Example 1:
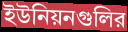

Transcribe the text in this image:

ইউনিয়নগুলির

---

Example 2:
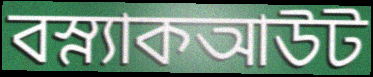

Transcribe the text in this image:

বস্ন্যাকআউট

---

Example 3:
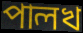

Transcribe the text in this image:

পালখ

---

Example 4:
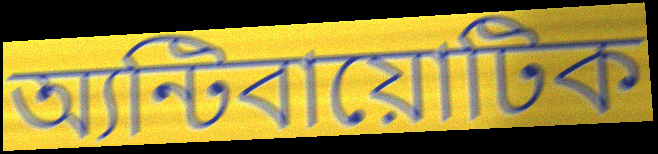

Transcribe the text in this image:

অ্যন্টিবায়োটিক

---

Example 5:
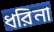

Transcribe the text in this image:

ধরিনা